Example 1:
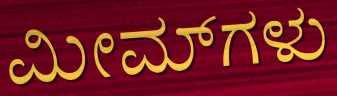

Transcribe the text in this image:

ಮೀಮ್‌ಗಳು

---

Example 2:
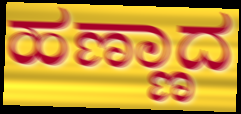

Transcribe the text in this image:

ಹಣ್ಣಾದ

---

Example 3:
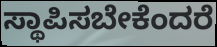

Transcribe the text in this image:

ಸ್ಥಾಪಿಸಬೇಕೆಂದರೆ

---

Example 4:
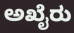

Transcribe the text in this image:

ಅಖೈರು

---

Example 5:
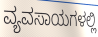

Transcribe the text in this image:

ವ್ಯವಸಾಯಗಳಲ್ಲಿ